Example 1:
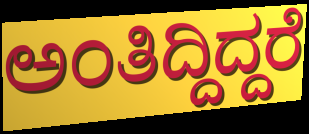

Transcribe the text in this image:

ಅಂತಿದ್ದಿದ್ದರೆ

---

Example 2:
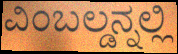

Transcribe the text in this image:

ವಿಂಬಲ್ಡನ್ನಲ್ಲಿ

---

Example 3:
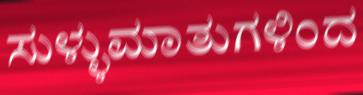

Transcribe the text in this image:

ಸುಳ್ಳುಮಾತುಗಳಿಂದ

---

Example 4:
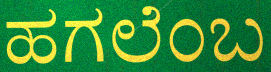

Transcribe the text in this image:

ಹಗಲೆಂಬ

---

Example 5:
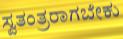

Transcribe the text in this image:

ಸ್ವತಂತ್ರರಾಗಬೇಕು